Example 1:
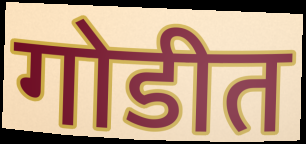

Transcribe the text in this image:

गोडीत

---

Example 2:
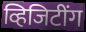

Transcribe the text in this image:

व्हिजिटींग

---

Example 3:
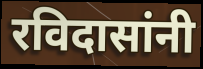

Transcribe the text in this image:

रविदासांनी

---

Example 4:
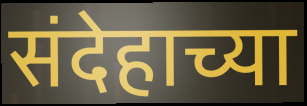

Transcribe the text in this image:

संदेहाच्या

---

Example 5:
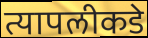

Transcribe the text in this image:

त्यापलीकडे